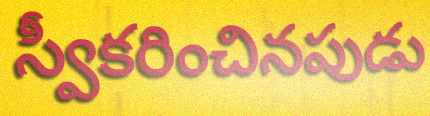
స్వీకరించినపుడు